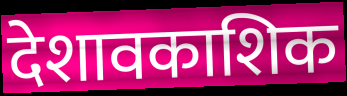
देशावकाशिक